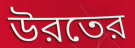
উরতের